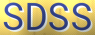
SDSS